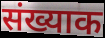
संख्याक